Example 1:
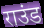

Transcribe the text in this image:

राउंड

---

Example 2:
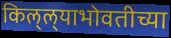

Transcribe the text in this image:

किल्ल्याभोवतीच्या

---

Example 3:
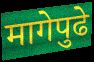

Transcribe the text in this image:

मागेपुढे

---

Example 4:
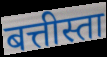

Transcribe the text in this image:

बत्तीस्ता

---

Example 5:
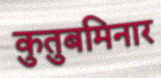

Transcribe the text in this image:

कुतुबमिनार